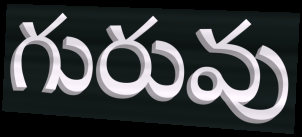
గురువు